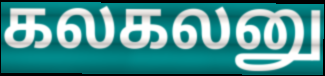
கலகலனு